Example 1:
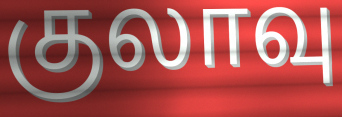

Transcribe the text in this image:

குலாவு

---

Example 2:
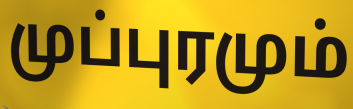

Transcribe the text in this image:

முப்புரமும்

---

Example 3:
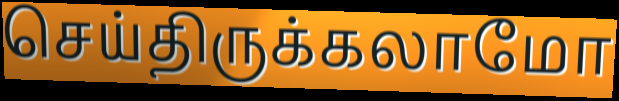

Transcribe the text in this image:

செய்திருக்கலாமோ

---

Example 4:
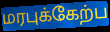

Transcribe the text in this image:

மரபுக்கேற்ப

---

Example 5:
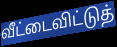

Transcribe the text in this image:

வீட்டைவிட்டுத்